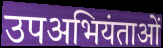
उपअभियंताओं